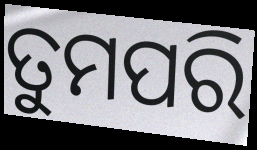
ତୁମପରି